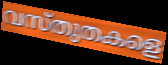
വസ്തുതകളെ